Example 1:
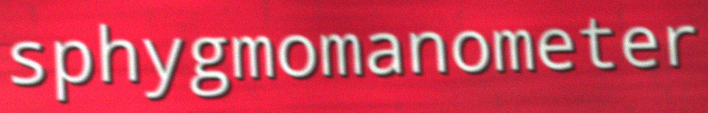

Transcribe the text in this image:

sphygmomanometer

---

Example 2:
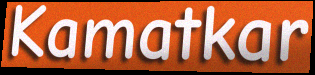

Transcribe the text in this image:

Kamatkar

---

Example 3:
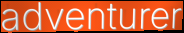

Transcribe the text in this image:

adventurer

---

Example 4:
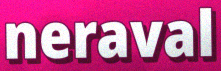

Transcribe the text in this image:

neraval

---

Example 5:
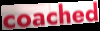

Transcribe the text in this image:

coached